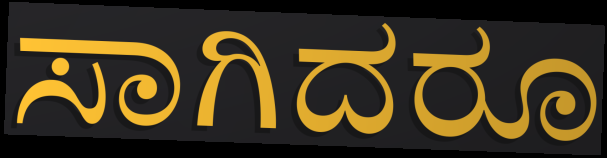
ಸಾಗಿದರೂ